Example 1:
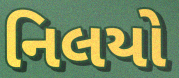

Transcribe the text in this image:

નિલયો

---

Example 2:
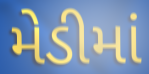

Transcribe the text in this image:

મેડીમાં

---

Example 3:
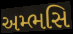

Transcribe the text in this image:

અમ્ભસિ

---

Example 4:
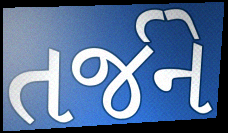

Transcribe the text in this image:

તર્જને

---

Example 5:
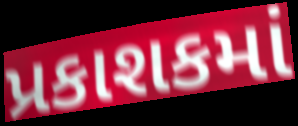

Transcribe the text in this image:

પ્રકાશકમાં